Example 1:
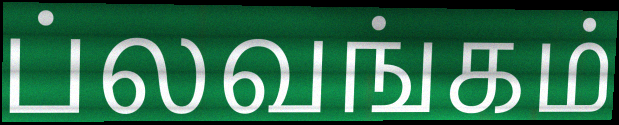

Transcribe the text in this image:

ப்லவங்கம்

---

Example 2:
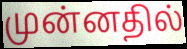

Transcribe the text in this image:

முன்னதில்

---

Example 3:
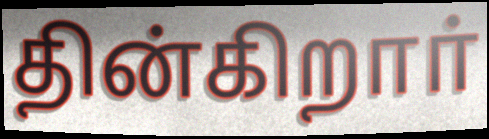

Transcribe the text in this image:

தின்கிறார்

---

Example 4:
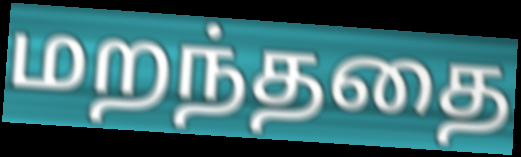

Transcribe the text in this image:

மறந்ததை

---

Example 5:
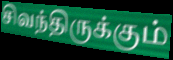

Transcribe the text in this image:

சிவந்திருக்கும்